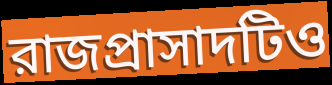
রাজপ্রাসাদটিও